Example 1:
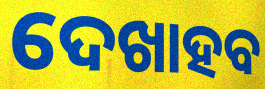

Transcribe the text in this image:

ଦେଖାହବ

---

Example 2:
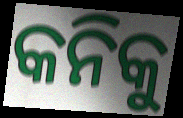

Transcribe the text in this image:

କନିକୁ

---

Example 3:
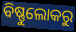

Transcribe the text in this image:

ବିଷ୍ଣୁଲୋକରୁ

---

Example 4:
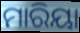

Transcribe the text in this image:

ମାରିୟା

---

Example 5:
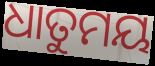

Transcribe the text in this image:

ଧାତୁମୟ